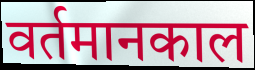
वर्तमानकाल